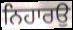
ਨਿਹਾਰਉ